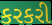
કરકરી